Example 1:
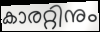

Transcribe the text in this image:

കാരറ്റിനും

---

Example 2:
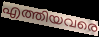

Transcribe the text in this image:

എത്തിയവരെ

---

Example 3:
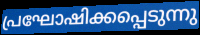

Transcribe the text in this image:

പ്രഘോഷിക്കപ്പെടുന്നു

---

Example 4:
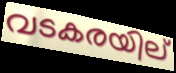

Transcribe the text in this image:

വടകരയില്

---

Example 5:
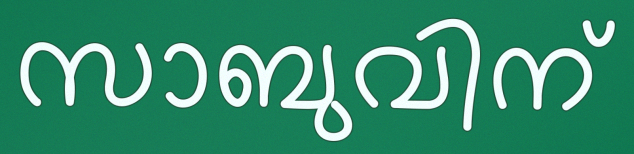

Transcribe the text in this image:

സാബുവിന്